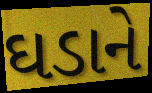
ઘડાને